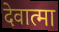
देवात्मा